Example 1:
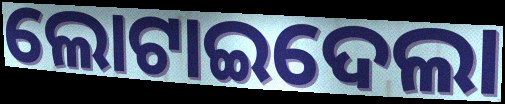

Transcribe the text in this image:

ଲୋଟାଇଦେଲା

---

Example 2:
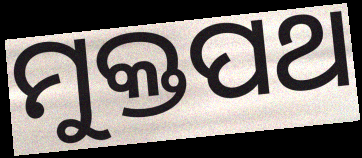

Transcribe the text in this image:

ମୁକ୍ତପଥ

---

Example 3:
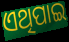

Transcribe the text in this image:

ଏଥିପାଇ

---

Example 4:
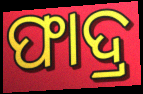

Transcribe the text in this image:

ଫାଦ୍ର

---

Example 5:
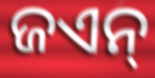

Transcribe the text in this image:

ଜଏନ୍